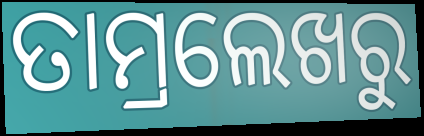
ତାମ୍ରଲେଖରୁ